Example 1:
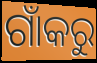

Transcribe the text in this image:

ଗାଁକରୁ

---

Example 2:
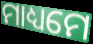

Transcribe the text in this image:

ମାଧ୍ୟମେ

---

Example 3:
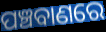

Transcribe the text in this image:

ପଞ୍ଚବାଣରେ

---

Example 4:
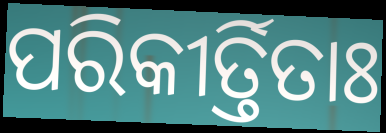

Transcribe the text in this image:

ପରିକୀର୍ତ୍ତିତାଃ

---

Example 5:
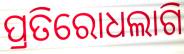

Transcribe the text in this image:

ପ୍ରତିରୋଧଲାଗି